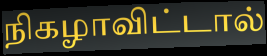
நிகழாவிட்டால்